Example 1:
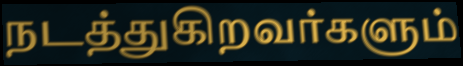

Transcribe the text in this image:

நடத்துகிறவர்களும்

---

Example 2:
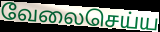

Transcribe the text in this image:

வேலைசெய்ய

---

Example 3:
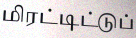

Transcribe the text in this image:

மிரட்டிட்டுப்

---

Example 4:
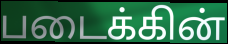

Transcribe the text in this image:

படைக்கின்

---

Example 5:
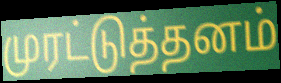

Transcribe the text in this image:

முரட்டுத்தனம்